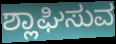
ಶ್ಲಾಘಿಸುವ